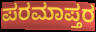
ಪರಮಾಪ್ತರ